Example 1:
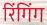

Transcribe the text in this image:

रिंगिंग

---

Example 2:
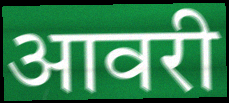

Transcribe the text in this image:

आवरी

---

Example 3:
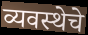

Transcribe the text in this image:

व्यवस्थेचे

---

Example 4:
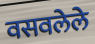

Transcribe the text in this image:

वसवलेले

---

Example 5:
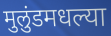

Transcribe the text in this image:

मुलुंडमधल्या